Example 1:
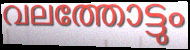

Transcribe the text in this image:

വലത്തോട്ടും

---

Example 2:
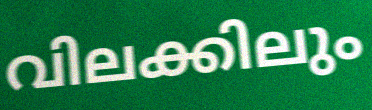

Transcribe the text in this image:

വിലക്കിലും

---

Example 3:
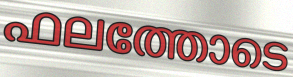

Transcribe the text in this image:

ഫലത്തോടെ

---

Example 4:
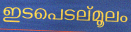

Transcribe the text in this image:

ഇടപെടല്മൂലം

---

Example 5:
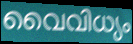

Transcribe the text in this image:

വൈവിധ്യം